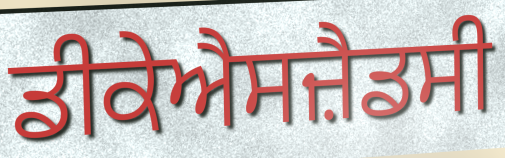
ਡੀਕੇਐਸਜ਼ੈਡਸੀ